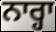
ਨਾਰ੍ਹਾ